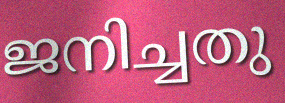
ജനിച്ചതു